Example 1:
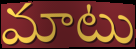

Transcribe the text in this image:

మాటు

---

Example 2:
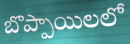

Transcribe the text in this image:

బొప్పాయిలలో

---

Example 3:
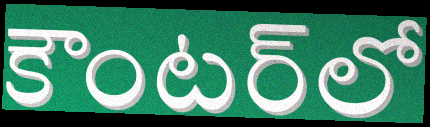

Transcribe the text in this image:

కౌంటర్‌లో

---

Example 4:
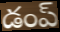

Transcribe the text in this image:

డంప్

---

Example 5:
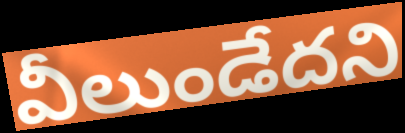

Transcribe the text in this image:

వీలుండేదని